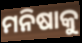
ମନିଷାକୁ